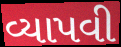
વ્યાપવી